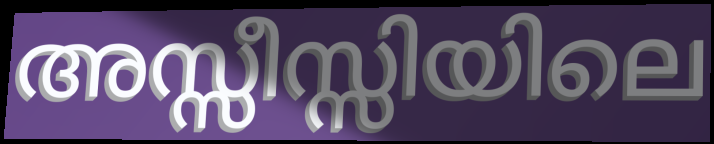
അസ്സീസ്സിയിലെ